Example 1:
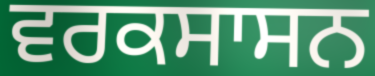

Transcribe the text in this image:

ਵਰਕਸਾਸਨ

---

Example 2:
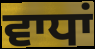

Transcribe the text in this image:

ਵਾਧਾਂ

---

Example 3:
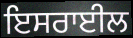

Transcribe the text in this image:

ਇਸਰਾਈਲ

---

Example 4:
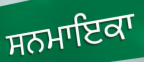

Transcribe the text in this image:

ਸਨਮਾਇਕਾ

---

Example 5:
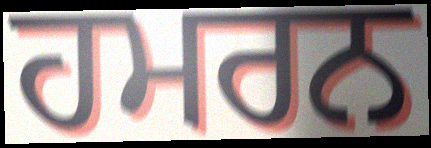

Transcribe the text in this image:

ਹਮਰਨ